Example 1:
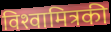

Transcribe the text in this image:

विश्वामित्रकी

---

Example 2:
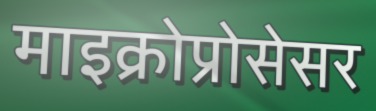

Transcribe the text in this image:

माइक्रोप्रोसेसर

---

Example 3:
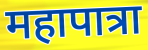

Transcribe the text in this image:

महापात्रा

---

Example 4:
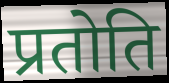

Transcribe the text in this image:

प्रतोति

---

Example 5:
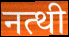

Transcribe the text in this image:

नत्‍थी